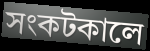
সংকটকালে